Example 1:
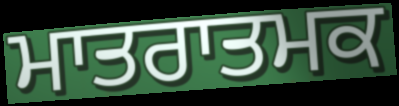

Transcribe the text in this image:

ਮਾਤਰਾਤਮਕ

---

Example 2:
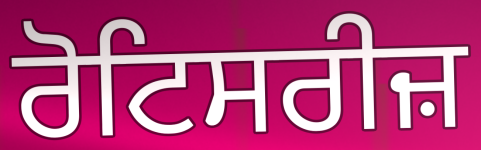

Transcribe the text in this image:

ਰੋਟਿਸਰੀਜ਼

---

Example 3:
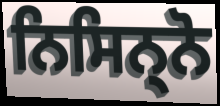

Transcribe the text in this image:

ਨਿਸਿਨ੍ਨੋ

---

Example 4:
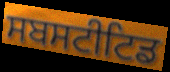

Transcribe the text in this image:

ਸਬਸਟੀਟਿਡ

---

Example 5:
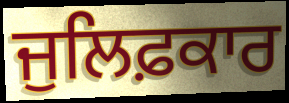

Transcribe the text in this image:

ਜੁਲਿਫ਼ਕਾਰ